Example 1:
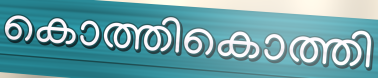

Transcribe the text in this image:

കൊത്തികൊത്തി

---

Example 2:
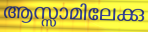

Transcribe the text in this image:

ആസ്സാമിലേക്കു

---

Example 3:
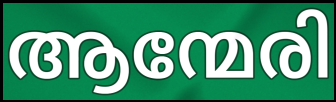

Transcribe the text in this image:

ആന്മേരി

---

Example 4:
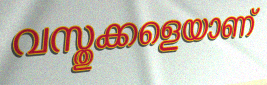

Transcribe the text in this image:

വസ്തുക്കളെയാണ്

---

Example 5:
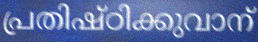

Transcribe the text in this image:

പ്രതിഷ്ഠിക്കുവാന്